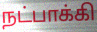
நட்பாக்கி